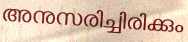
അനുസരിച്ചിരിക്കും